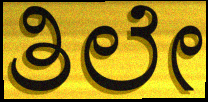
ತಿಲೇ